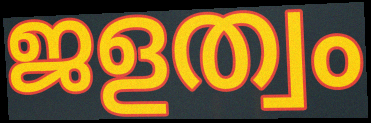
ജളത്വം